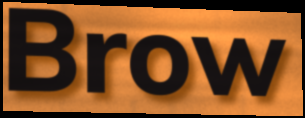
Brow